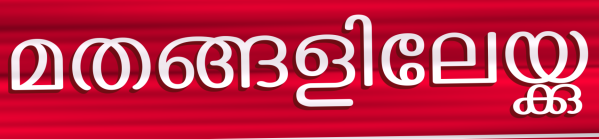
മതങ്ങളിലേയ്ക്കു